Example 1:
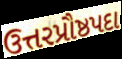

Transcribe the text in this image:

ઉત્તરપ્રૌષ્ઠપદા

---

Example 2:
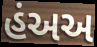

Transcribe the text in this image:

હંઅઅ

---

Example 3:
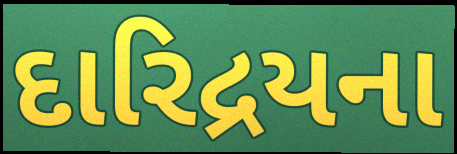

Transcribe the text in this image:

દારિદ્રયના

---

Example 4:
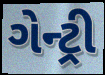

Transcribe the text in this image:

ગેન્ટ્રી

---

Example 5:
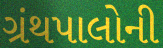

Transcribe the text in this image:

ગ્રંથપાલોની